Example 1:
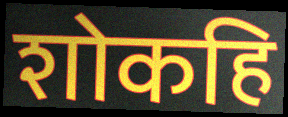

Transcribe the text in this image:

शोकहि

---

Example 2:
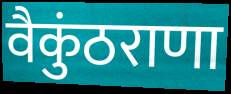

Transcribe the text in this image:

वैकुंठराणा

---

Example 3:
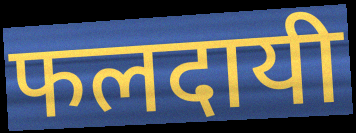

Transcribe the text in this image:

फलदायी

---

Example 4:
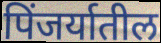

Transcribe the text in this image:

पिंजर्यातील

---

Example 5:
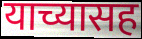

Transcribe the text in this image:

याच्यासह